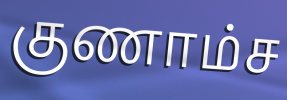
குணாம்ச